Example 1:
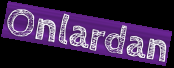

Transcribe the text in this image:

Onlardan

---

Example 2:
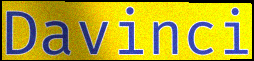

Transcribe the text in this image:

Davinci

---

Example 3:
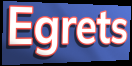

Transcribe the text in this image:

Egrets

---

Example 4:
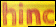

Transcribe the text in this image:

hinc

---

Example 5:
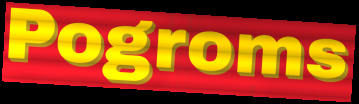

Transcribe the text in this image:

Pogroms